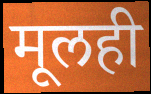
मूलही